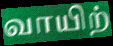
வாயிற்